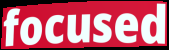
focused